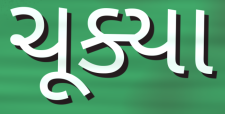
ચૂક્યા